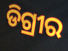
ଡିଗ୍ରୀର